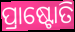
ପ୍ରାଷ୍ଟୋତି